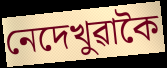
নেদেখুৱাকৈ